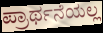
ಪ್ರಾರ್ಥನೆಯಲ್ಲ